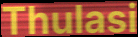
Thulasi